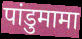
पांडुमामा